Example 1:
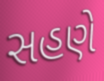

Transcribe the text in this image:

સહણે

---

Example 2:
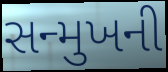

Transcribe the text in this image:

સન્મુખની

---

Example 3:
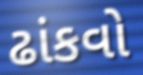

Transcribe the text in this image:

ઢાંકવો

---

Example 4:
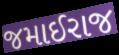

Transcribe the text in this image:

જમાઈરાજ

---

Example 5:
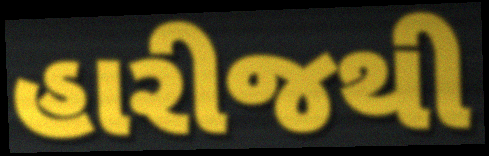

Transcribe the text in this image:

હારીજથી